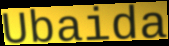
Ubaida